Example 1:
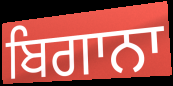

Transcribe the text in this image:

ਬਿਗਾਨਾ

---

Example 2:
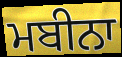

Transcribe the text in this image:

ਮਬੀਨਾ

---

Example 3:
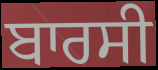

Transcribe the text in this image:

ਬਾਰਸੀ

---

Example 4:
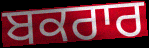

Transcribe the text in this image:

ਬਕਰਾਰ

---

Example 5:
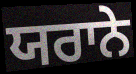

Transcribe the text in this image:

ਯਰਾਨੇ